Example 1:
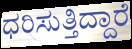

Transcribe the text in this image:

ಧರಿಸುತ್ತಿದ್ದಾರೆ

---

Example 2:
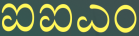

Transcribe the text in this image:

ಐಐಎಂ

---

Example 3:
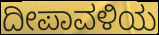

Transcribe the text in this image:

ದೀಪಾವಳಿಯ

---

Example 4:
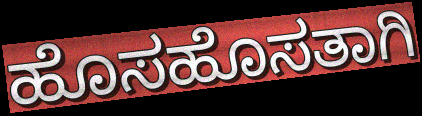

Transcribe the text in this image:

ಹೊಸಹೊಸತಾಗಿ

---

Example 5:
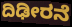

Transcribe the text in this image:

ದಿಢೀರನೆ